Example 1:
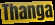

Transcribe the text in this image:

Thanga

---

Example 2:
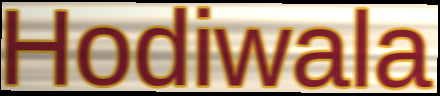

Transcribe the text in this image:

Hodiwala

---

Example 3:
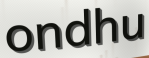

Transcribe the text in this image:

ondhu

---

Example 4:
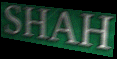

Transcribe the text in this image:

SHAH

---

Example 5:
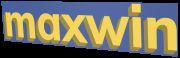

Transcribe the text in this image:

maxwin